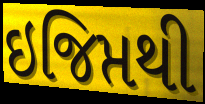
ઇજિપ્તથી